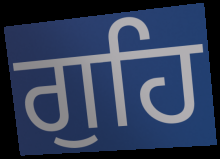
ਗੁਹਿ